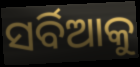
ସର୍ବିଆକୁ